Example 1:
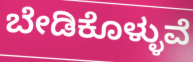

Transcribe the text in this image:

ಬೇಡಿಕೊಳ್ಳುವೆ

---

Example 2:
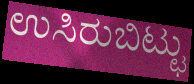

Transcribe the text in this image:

ಉಸಿರುಬಿಟ್ಟು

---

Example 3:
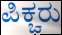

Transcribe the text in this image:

ಪಿಕ್ಚರು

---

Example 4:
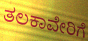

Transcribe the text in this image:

ತಲಕಾವೇರಿಗೆ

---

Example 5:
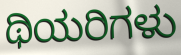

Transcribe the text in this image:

ಥಿಯರಿಗಳು